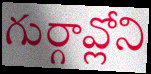
గుర్గావ్లోని